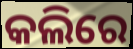
କଲିରେ